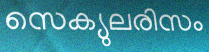
സെക്യുലരിസം